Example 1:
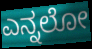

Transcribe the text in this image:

ಎನ್ನಲೋ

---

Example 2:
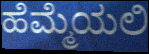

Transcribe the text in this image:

ಹೆಮ್ಮೆಯಲಿ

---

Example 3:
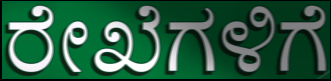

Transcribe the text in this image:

ರೇಖೆಗಳಿಗೆ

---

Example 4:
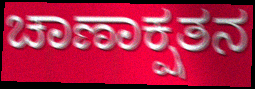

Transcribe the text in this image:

ಚಾಣಾಕ್ಷತನ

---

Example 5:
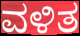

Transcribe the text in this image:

ವಳಿತ